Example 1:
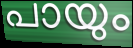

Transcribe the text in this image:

പായും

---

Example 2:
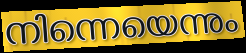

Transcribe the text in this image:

നിന്നെയെന്നും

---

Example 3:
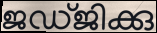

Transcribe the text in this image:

ജഡ്ജിക്കു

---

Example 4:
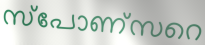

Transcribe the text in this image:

സ്പോണ്സറെ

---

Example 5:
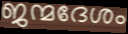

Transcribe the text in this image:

ജന്മദേശം